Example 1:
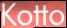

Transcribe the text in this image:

Kotto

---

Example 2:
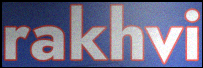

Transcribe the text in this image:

rakhvi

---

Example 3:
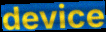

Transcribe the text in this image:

device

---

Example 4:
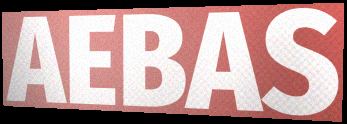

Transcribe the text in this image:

AEBAS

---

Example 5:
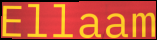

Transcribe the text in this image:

Ellaam